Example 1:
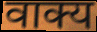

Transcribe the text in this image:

वाक्य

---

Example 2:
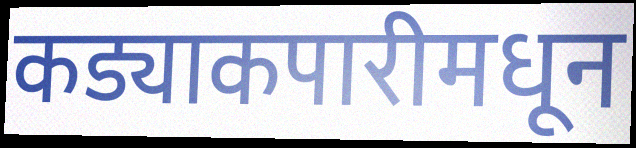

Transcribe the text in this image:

कड्याकपारीमधून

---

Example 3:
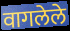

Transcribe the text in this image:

वागलेले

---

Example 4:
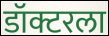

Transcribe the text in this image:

डॉक्टरला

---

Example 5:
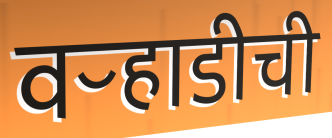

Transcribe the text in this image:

वऱ्हाडीची